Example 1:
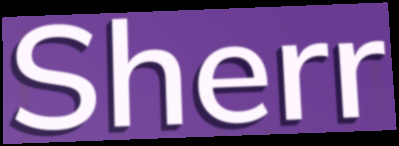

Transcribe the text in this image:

Sherr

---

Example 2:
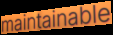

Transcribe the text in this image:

maintainable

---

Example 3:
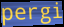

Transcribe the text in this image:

pergi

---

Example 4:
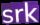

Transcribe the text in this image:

srk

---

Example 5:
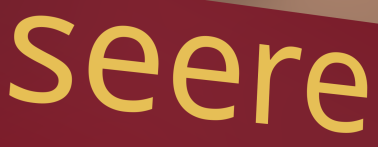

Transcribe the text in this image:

seere